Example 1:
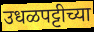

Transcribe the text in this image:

उधळपट्टीच्या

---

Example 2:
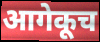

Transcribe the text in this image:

आगेकूच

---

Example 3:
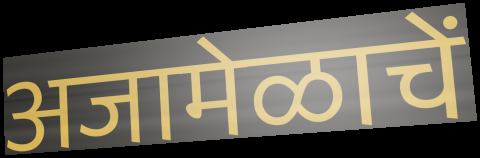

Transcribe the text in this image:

अजामेळाचें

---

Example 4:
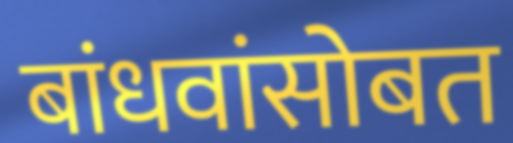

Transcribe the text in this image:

बांधवांसोबत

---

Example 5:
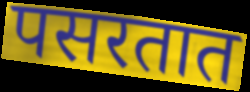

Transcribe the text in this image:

पसरतात